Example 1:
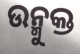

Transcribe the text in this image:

ଉନ୍ମୁକ୍ତ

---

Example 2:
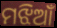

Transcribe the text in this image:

ମଝିଆଁ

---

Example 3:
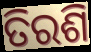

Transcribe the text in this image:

ତିରଶି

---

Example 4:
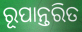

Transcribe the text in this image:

ରୂପାନ୍ତରିତ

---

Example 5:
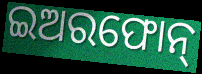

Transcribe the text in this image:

ଇଅରଫୋନ୍